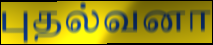
புதல்வனா